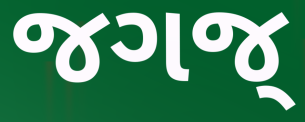
જગજ્